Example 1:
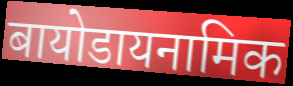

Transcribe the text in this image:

बायोडायनामिक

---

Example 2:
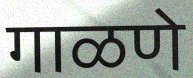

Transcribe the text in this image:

गाळणे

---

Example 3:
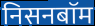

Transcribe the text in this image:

निसनबॉम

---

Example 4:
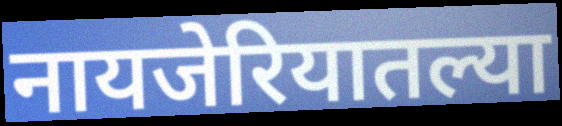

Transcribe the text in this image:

नायजेरियातल्या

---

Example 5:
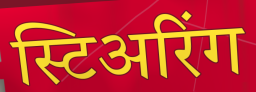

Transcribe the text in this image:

स्टिअरिंग